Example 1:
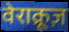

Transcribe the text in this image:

वेराक्रूज़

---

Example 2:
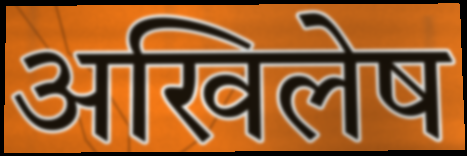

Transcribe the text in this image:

अखिलेष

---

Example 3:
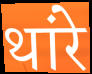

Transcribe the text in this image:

थांरे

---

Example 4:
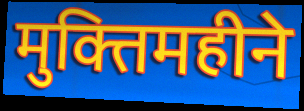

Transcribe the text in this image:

मुक्तिमहीने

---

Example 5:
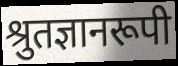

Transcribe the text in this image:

श्रुतज्ञानरूपी